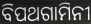
ବିପଥଗାମିନୀ